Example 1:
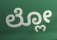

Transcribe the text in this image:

ಲ್ಲೋ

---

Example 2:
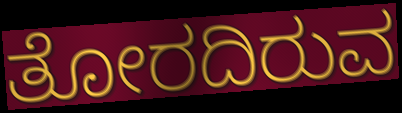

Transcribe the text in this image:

ತೋರದಿರುವ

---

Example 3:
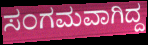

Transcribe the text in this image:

ಸಂಗಮವಾಗಿದ್ದ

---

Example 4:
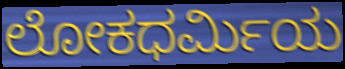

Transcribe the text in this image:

ಲೋಕಧರ್ಮಿಯ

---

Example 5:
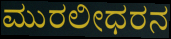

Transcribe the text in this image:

ಮುರಲೀಧರನ